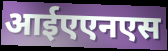
आईएएनएस